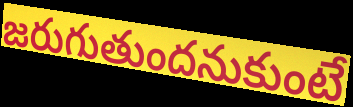
జరుగుతుందనుకుంటే